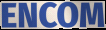
ENCOM